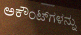
ಅಕೌಂಟ್‌ಗಳನ್ನು